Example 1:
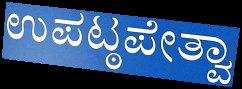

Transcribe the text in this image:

ಉಪಟ್ಠಪೇತ್ವಾ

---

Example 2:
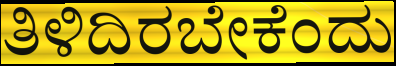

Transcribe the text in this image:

ತಿಳಿದಿರಬೇಕೆಂದು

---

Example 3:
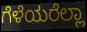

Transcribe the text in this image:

ಗೆಳೆಯರೆಲ್ಲಾ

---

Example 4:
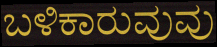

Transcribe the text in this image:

ಬಳಿಕಾರುವುವು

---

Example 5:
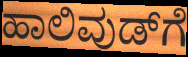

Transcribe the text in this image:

ಹಾಲಿವುಡ್‌ಗೆ